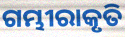
ଗମ୍ଭୀରାକୃତି